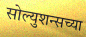
सोल्युशन्सच्या